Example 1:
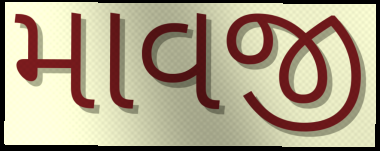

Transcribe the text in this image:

માવજી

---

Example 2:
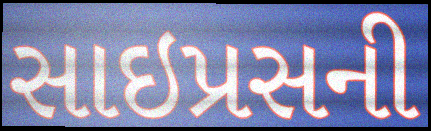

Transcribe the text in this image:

સાઇપ્રસની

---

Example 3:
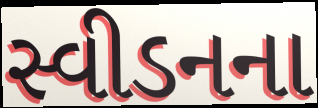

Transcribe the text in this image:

સ્વીડનના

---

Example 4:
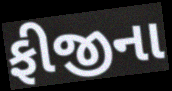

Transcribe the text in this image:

ફીજીના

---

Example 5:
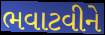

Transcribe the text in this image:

ભવાટવીને